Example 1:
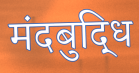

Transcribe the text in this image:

मंदबुद्धि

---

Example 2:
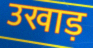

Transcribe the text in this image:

उखाड़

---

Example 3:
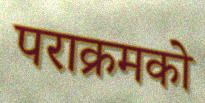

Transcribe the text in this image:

पराक्रमको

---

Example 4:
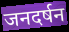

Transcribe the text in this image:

जनदर्षन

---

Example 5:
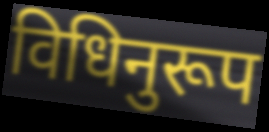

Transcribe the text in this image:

विधिनुरूप